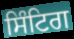
ਸਿੰਟਿਗ